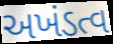
અખંડત્વ